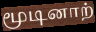
மூடினாற்